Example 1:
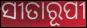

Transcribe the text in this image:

ସୀତାରୂପୀ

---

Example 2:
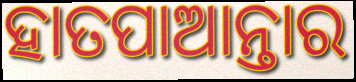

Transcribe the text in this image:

ହାତପାଆନ୍ତାର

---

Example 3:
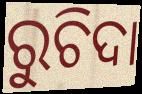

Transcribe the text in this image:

ରୁଚିଦା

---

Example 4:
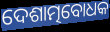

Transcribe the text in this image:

ଦେଶାତ୍ମବୋଧକ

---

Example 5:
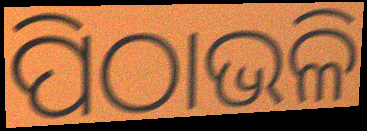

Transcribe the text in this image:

ପିଠାଭଳି